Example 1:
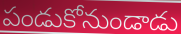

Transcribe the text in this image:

పండుకోనుండాడు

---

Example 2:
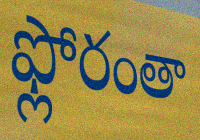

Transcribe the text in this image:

ఫ్లోరంతా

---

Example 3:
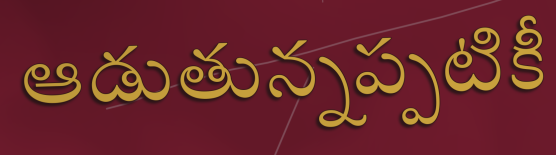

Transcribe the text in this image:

ఆడుతున్నప్పటికీ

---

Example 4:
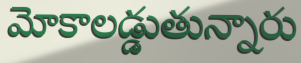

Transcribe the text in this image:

మోకాలడ్డుతున్నారు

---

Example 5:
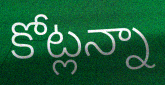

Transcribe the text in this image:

కోట్లన్నా